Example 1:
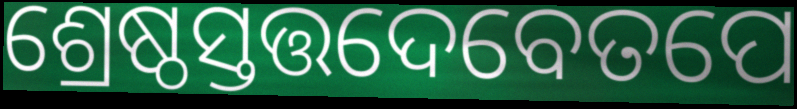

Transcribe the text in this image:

ଶ୍ରେଷ୍ଠସ୍ତତ୍ତଦେବେତପେ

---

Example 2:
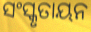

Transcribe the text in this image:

ସଂସ୍କୃତାୟନ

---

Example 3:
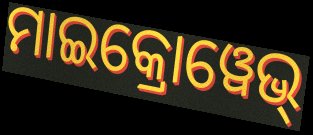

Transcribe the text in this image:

ମାଇକ୍ରୋୱେଭ୍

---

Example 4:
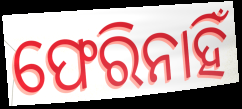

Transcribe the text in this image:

ଫେରିନାହିଁ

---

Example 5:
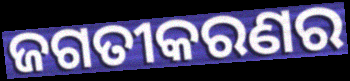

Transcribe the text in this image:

ଜଗତୀକରଣର